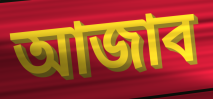
আজাব